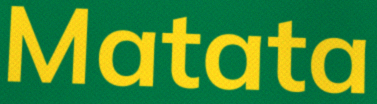
Matata